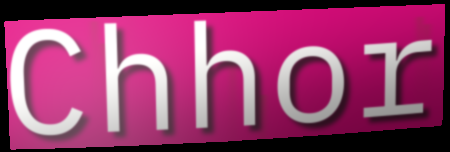
Chhor